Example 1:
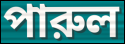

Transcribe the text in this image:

পারুল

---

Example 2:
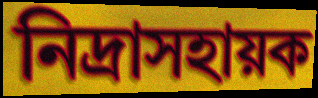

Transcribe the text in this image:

নিদ্রাসহায়ক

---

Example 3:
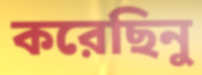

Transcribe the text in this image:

করেছিনু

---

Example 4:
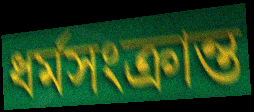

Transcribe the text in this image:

ধর্মসংক্রান্ত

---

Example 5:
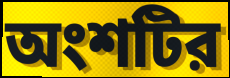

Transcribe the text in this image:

অংশটির